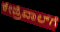
ಕೇಜ್ರಿವಾಲ್‍ಗೆ